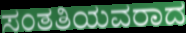
ಸಂತತಿಯವರಾದ